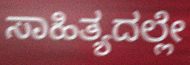
ಸಾಹಿತ್ಯದಲ್ಲೇ